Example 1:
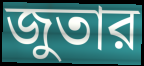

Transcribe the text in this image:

জুতার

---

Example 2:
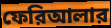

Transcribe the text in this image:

ফেরিআলার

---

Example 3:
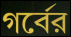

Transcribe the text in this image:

গর্বের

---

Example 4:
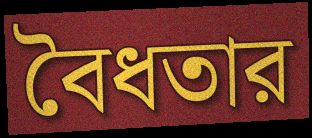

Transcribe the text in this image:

বৈধতার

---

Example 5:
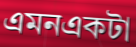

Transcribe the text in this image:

এমনএকটা